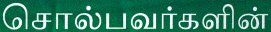
சொல்பவர்களின்